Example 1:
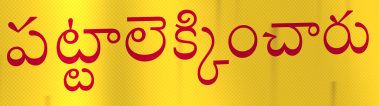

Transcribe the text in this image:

పట్టాలెక్కించారు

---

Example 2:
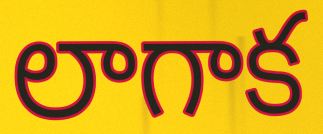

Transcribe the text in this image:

లాగాక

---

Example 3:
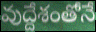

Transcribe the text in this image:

వుద్దేశంతోనే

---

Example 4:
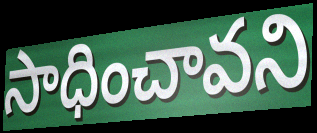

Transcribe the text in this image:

సాధించావని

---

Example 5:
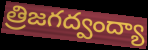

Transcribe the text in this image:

త్రిజగద్వంద్యా